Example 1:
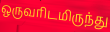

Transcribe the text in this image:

ஒருவரிடமிருந்து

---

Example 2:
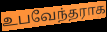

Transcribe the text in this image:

உபவேந்தராக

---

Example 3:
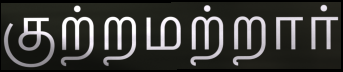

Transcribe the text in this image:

குற்றமற்றார்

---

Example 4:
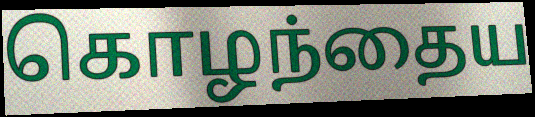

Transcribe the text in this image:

கொழந்தைய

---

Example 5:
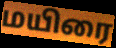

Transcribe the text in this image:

மயிரை